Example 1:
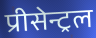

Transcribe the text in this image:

प्रीसेन्ट्रल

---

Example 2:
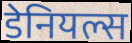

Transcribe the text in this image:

डेनियल्स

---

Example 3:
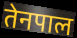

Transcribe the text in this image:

तेनपाल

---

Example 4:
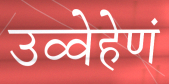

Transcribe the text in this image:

उव्वेहेणं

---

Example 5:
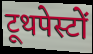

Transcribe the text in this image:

टूथपेस्टों